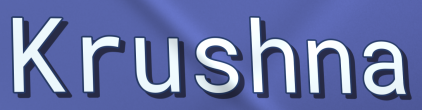
Krushna